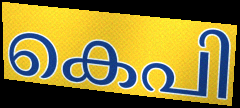
കെപി